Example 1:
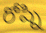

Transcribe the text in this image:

రోష్ని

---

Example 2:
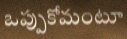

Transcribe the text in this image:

ఒప్పుకోమంటూ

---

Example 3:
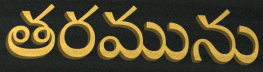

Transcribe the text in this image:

తరమును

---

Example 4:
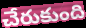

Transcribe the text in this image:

చేరుకుంది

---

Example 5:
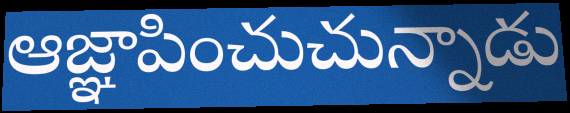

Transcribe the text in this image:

ఆజ్ఞాపించుచున్నాడు